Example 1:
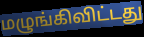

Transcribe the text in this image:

மழுங்கிவிட்டது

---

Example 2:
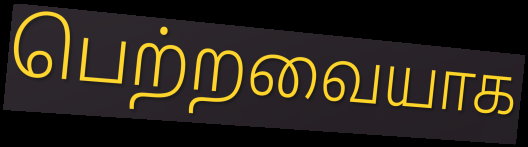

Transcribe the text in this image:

பெற்றவையாக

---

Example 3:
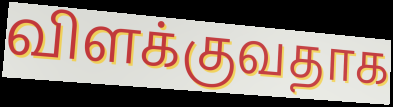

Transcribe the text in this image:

விளக்குவதாக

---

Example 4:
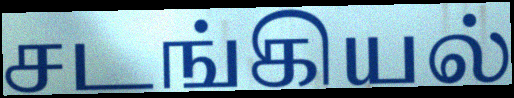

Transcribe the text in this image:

சடங்கியல்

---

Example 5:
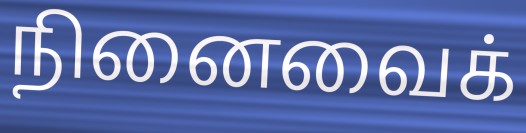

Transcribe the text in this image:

நினைவைக்